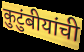
कुटुंबीयांची